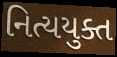
નિત્યયુક્ત